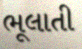
ભૂલાતી